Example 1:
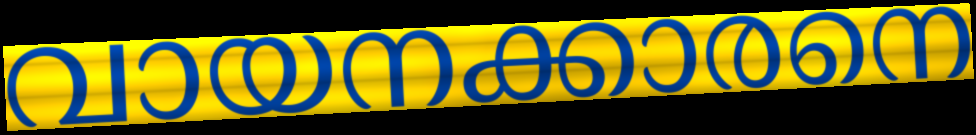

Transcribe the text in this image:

വായനക്കാരനെ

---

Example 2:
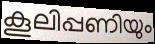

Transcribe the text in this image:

കൂലിപ്പണിയും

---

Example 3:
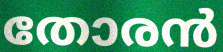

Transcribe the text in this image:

തോരൻ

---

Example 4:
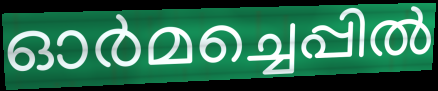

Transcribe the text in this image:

ഓർമച്ചെപ്പിൽ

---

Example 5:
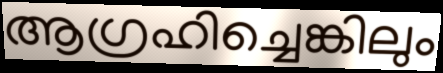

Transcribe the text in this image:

ആഗ്രഹിച്ചെങ്കിലും